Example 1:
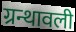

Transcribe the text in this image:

ग्रन्थावली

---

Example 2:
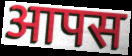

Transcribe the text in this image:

आपस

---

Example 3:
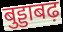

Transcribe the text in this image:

बुड्डाबढ़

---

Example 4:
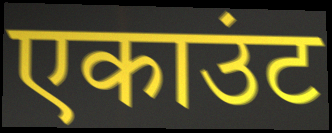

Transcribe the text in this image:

एकाउंट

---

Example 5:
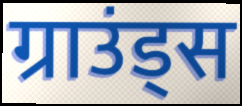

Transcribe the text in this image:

ग्राउंड्स